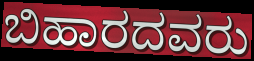
ಬಿಹಾರದವರು